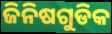
ଜିନିଷଗୁଡିକ